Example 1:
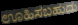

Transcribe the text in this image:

ಊಹಿಸಬಹುದು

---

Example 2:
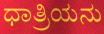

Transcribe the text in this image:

ಧಾತ್ರಿಯನು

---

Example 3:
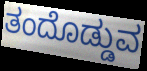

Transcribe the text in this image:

ತಂದೊಡ್ಡುವ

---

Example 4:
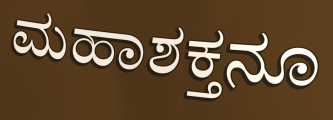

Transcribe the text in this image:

ಮಹಾಶಕ್ತನೂ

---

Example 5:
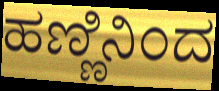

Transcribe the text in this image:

ಹಣ್ಣಿನಿಂದ